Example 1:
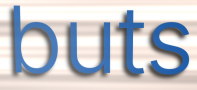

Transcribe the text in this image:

buts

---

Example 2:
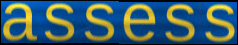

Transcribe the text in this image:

assess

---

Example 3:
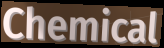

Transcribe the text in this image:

Chemical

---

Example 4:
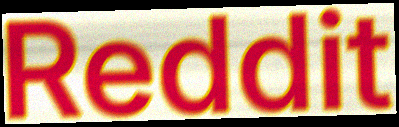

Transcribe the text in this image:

Reddit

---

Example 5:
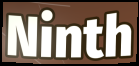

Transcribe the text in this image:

Ninth